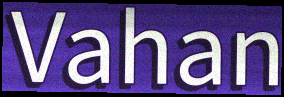
Vahan